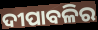
ଦୀପାବଳିର